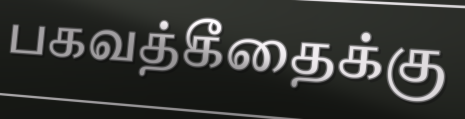
பகவத்கீதைக்கு